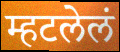
म्हटलेलं